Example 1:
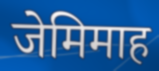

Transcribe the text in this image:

जेमिमाह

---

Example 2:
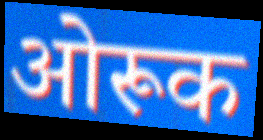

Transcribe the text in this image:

ओरूक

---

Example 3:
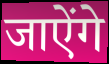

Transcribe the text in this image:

जाऐंगे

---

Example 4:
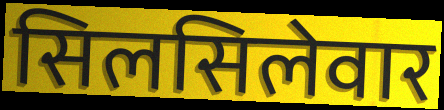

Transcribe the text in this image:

सिलसिलेवार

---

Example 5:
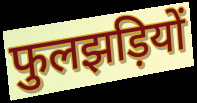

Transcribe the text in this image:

फुलझड़ियों